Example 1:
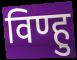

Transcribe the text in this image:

विण्हु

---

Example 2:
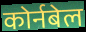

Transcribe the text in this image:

कोर्नबेल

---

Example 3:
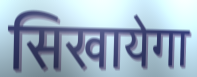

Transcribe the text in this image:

सिखायेगा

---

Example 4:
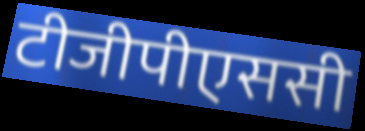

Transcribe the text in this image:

टीजीपीएससी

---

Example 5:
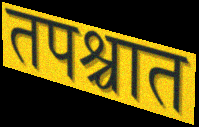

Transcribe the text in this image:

तपश्चात